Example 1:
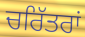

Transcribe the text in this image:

ਚਰਿੱਤਰਾਂ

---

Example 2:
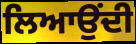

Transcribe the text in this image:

ਲਿਆਉਂਦੀ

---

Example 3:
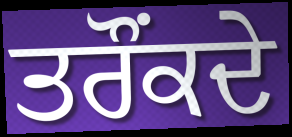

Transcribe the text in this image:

ਤਰੌਂਕਦੇ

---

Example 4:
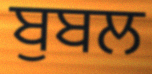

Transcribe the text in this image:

ਬੁਬਲ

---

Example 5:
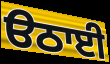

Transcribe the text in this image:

ੳਠਾਈ